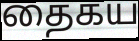
தைகய